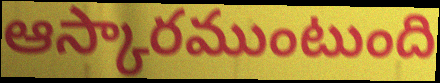
ఆస్కారముంటుంది